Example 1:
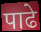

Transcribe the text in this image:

पाढे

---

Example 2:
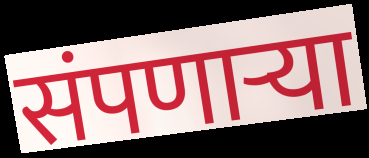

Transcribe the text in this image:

संपणाऱ्या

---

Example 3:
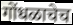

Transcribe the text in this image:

गोंधळाचेच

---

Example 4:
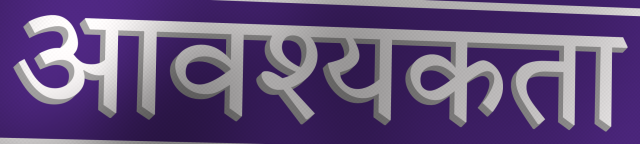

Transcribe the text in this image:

आवश्यकता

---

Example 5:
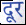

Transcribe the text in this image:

दूर